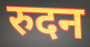
रुदन